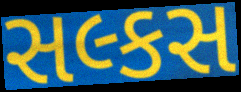
સલ્કસ